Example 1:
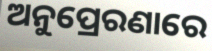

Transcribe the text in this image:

ଅନୁପ୍ରେରଣାରେ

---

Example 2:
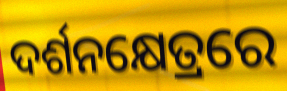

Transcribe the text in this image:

ଦର୍ଶନକ୍ଷେତ୍ରରେ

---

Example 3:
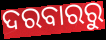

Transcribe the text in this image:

ଦରବାରରୁ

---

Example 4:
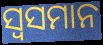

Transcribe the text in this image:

ସ୍ୱସମାନ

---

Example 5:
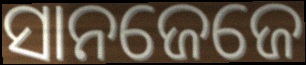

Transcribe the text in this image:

ସାନଜେଜେ